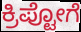
ಕ್ರಿಪ್ಟೋಗೆ